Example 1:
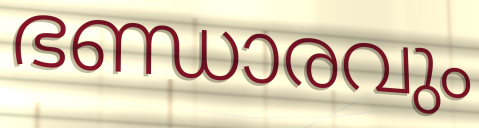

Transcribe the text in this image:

ഭണ്ഡാരവും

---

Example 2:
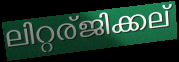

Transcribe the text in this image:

ലിറ്റര്ജിക്കല്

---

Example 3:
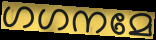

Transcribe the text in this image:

ഗഗനമേ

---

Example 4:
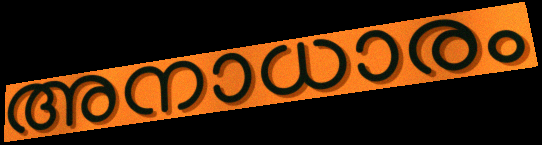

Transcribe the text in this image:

അനാധാരം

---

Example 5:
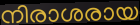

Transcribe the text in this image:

നിരാശരായ